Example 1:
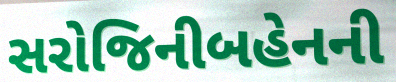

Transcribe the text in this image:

સરોજિનીબહેનની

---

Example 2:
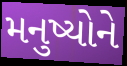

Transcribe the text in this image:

મનુષ્યોને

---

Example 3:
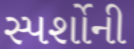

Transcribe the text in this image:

સ્પર્શોની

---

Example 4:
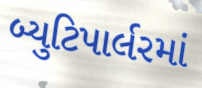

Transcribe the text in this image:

બ્યુટિપાર્લરમાં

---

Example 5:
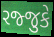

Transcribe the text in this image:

રજ્જુકે